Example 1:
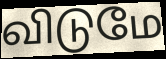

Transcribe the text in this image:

விடுமே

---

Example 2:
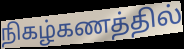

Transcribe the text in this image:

நிகழ்கணத்தில்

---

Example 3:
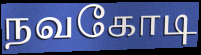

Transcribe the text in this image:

நவகோடி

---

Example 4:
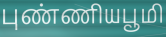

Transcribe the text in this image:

புண்ணியபூமி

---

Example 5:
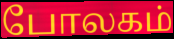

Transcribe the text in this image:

போலகம்